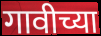
गावीच्या